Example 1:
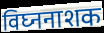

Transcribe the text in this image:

विघ्ननाशक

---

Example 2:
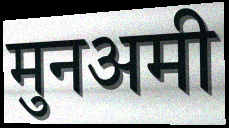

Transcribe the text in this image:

मुनअमी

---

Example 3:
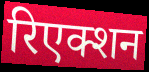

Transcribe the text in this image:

रिएक्शन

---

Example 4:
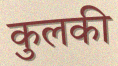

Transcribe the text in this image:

कुलकी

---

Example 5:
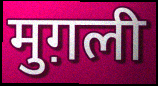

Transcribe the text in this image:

मुग़ली